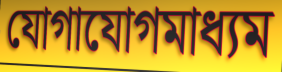
যোগাযোগমাধ্যম